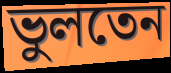
ভুলতেন